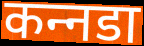
कन्नडा